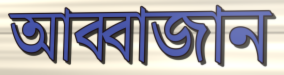
আব্বাজান